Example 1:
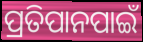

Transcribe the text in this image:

ପ୍ରତିପାନପାଇଁ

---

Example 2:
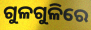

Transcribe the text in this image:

ଗୁଳଗୁଳିରେ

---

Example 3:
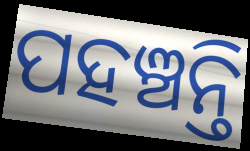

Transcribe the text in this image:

ପହଞ୍ଚନ୍ତି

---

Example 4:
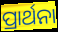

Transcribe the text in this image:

ପ୍ରାର୍ଥନା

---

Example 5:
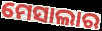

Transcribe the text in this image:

ମେସାଲାର